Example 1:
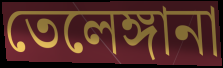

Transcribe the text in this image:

তেলেঙ্গানা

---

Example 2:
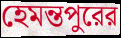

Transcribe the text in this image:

হেমন্তপুরের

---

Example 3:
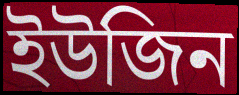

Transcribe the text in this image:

ইউজিন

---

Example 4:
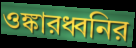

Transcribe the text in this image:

ওঙ্কারধ্বনির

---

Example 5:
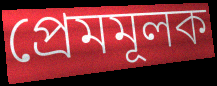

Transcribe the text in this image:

প্রেমমূলক